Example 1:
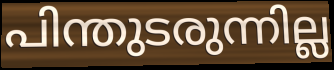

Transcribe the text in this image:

പിന്തുടരുന്നില്ല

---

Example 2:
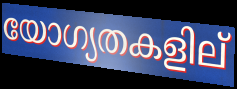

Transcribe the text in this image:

യോഗ്യതകളില്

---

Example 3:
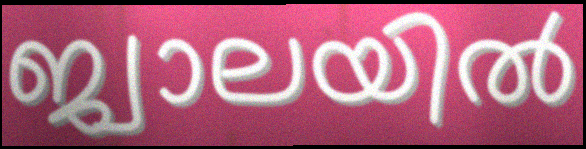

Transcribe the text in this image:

ജ്വാലയിൽ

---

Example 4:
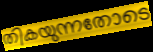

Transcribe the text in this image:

തികയുന്നതോടെ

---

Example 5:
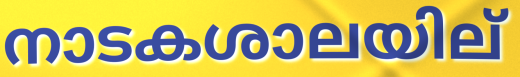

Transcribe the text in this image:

നാടകശാലയില്